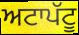
ਅਟਾਪੱਟੂ